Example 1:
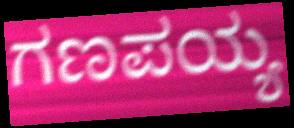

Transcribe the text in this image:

ಗಣಪಯ್ಯ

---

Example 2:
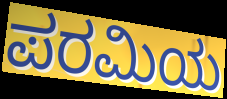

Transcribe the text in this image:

ಪರಮಿಯ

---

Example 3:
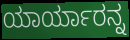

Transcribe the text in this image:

ಯಾರ್ಯಾರನ್ನ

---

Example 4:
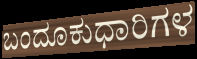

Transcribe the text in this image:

ಬಂದೂಕುಧಾರಿಗಳ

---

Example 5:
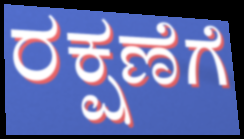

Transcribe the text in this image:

ರಕ್ಷಣೆಗೆ